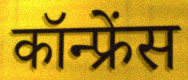
कॉन्फ्रेंस